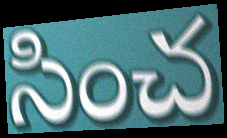
సించ